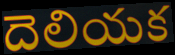
దెలియక